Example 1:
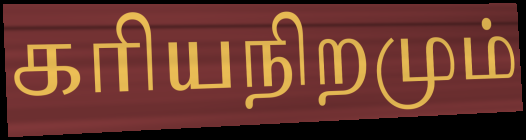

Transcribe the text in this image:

கரியநிறமும்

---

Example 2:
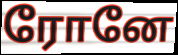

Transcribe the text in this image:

ரோனே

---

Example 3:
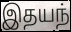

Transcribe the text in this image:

இதயந்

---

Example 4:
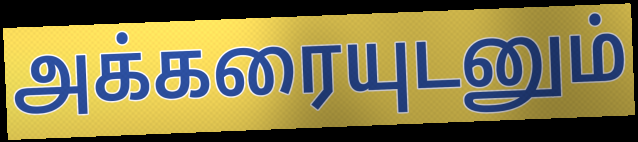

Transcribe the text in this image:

அக்கரையுடனும்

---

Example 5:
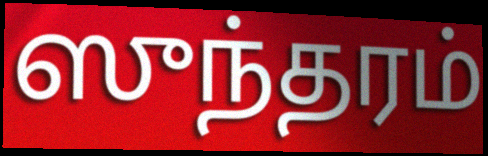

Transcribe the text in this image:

ஸுந்தரம்